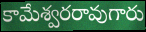
కామేశ్వరరావుగారు